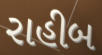
રાહીબ